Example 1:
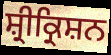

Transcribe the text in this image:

ਸ਼੍ਰੀਕ੍ਰਿਸ਼ਨ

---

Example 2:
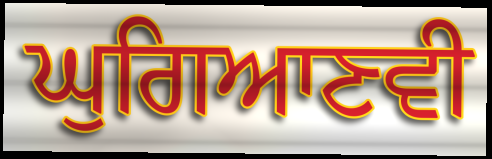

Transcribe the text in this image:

ਘੁਗਿਆਣਵੀ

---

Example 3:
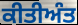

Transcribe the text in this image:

ਕੀਤੀਅੰਤ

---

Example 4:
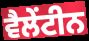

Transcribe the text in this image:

ਵੈਲੇਂਟੀਨ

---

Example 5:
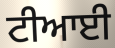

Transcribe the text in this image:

ਟੀਆਈ